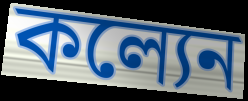
কল্যেন